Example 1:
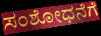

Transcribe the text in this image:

ಸಂಶೋಧನೆಗೆ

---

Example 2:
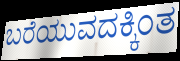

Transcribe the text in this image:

ಬರೆಯುವದಕ್ಕಿಂತ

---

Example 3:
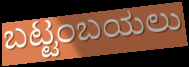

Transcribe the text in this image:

ಬಟ್ಟಂಬಯಲು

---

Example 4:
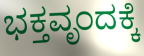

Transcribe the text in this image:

ಭಕ್ತವೃಂದಕ್ಕೆ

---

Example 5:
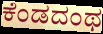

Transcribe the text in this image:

ಕೆಂಡದಂಥ